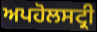
ਅਪਹੋਲਸਟ੍ਰੀ